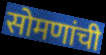
सोमणांची